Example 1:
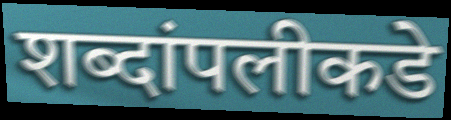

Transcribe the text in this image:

शब्दांपलीकडे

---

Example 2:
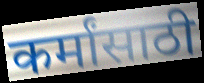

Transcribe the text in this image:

कर्मांसाठी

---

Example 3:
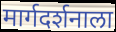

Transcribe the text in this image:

मार्गदर्शनाला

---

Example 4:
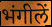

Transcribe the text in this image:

भंगीलें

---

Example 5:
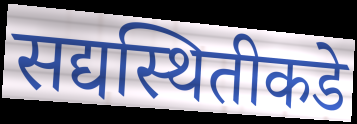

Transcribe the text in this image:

सद्यस्थितीकडे